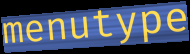
menutype